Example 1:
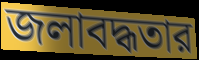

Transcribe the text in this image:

জলাবদ্ধতার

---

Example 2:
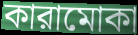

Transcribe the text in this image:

কারামোকা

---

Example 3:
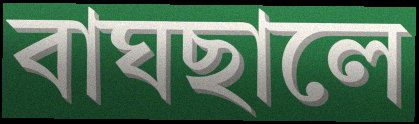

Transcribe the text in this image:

বাঘছালে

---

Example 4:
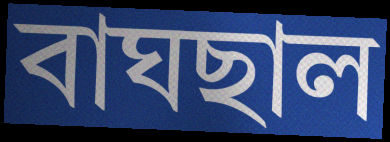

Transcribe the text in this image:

বাঘছাল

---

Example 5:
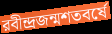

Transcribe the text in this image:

রবীন্দ্রজন্মশতবর্ষে